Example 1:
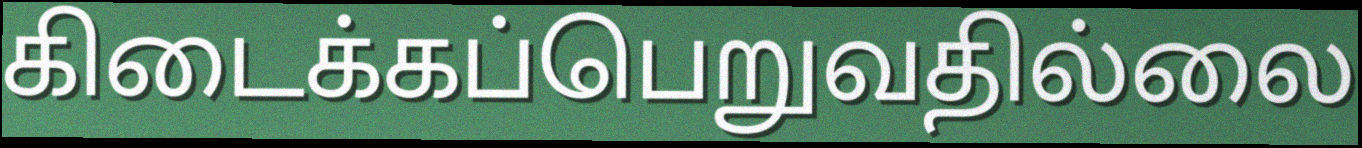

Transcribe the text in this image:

கிடைக்கப்பெறுவதில்லை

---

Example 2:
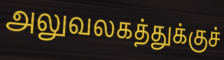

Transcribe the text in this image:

அலுவலகத்துக்குச்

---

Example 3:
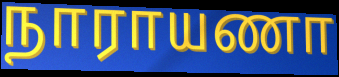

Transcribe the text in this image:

நாராயணா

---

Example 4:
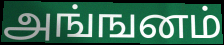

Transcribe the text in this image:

அங்ஙனம்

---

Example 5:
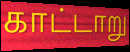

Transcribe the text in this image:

காட்டாறு